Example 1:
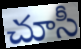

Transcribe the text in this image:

చూసీ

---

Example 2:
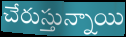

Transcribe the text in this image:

చేరుస్తున్నాయి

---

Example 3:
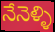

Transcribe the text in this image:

నేనెళ్ళి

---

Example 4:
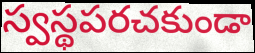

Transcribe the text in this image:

స్వస్థపరచకుండా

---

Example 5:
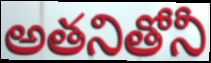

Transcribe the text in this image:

అతనితోనీ